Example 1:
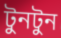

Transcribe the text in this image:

টুনটুন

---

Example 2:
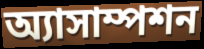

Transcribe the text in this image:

অ্যাসাম্পশন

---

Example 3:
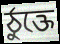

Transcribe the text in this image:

ঠুক্তে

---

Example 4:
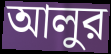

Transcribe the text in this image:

আলুর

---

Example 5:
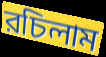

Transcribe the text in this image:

রচিলাম